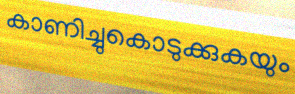
കാണിച്ചുകൊടുക്കുകയും